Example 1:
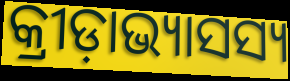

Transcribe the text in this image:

କ୍ରୀଡ଼ାଭ୍ୟାସସ୍ୟ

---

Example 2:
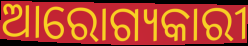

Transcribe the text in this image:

ଆରୋଗ୍ୟକାରୀ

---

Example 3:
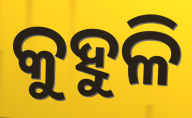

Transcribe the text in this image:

କୁହୁଳି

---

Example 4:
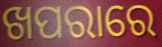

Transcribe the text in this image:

ଖପରାରେ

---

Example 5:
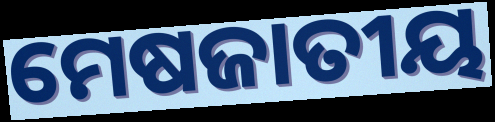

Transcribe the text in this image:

ମେଷଜାତୀୟ